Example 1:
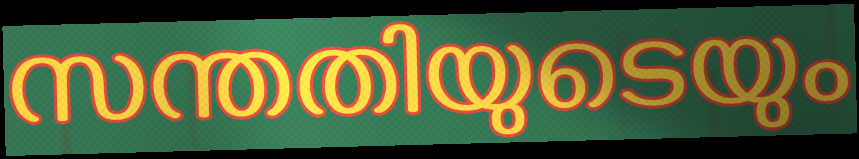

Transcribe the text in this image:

സന്തതിയുടെയും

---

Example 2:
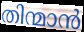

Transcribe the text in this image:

തിന്മാൻ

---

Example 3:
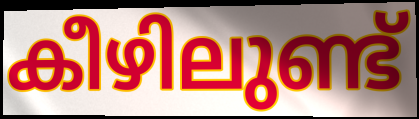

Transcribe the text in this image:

കീഴിലുണ്ട്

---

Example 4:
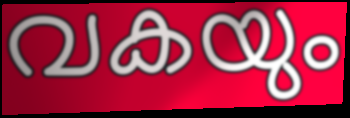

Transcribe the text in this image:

വകയും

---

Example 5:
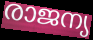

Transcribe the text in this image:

രാജന്യ